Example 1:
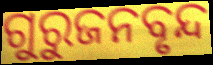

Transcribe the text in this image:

ଗୁରୁଜନବୃନ୍ଦ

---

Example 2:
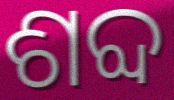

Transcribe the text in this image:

ଶବ୍ଦ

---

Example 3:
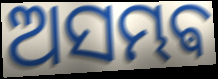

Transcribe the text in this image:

ଅସମ୍ଭଵ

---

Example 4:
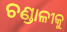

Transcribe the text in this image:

ଚଣ୍ଡାଳୀକୁ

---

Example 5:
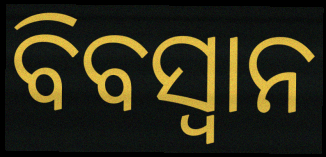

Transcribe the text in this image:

ବିବସ୍ୱାନ